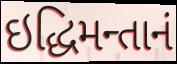
ઇદ્ધિમન્તાનં